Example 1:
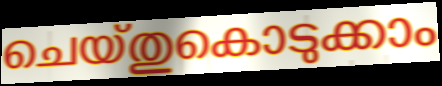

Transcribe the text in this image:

ചെയ്തുകൊടുക്കാം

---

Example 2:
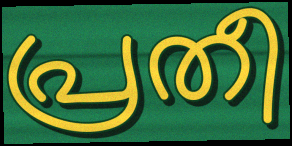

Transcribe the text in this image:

പ്രതീ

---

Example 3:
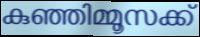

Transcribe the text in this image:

കുഞ്ഞിമ്മൂസക്ക്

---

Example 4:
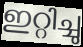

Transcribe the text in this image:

ഇറ്റിച്ചു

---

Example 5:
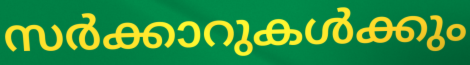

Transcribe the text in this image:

സർക്കാറുകൾക്കും